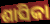
ଶାସିକା